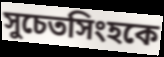
সুচেতসিংহকে